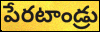
పేరటాండ్రు